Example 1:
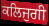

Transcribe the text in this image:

ਕਲਿਜੁਗੀ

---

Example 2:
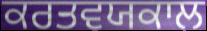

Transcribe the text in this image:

ਕਰਤਵਯਕਾਲ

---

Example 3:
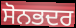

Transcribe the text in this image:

ਸੋਨਭਦਰ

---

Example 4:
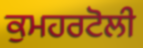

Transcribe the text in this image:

ਕੁਮਹਰਟੋਲੀ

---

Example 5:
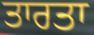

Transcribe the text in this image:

ਤਾਰਤਾ